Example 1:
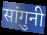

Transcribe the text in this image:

सांगुनी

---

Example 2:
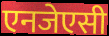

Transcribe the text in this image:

एनजेएसी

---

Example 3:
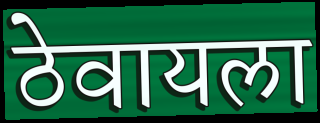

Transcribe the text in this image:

ठेवायला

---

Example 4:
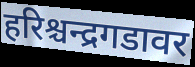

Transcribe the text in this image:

हरिश्चन्द्रगडावर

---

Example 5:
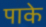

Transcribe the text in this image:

पाके